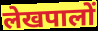
लेखपालों